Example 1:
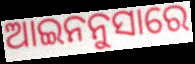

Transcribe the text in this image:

ଆଇନନୁସାରେ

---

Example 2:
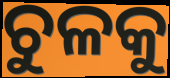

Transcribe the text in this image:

ଚୁଳକୁ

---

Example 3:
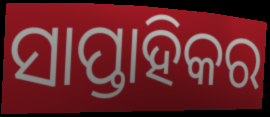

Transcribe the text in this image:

ସାପ୍ତାହିକର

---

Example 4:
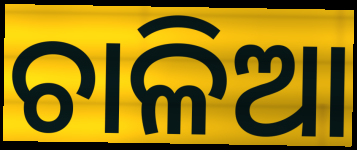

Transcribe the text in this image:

ଚାଳିଆ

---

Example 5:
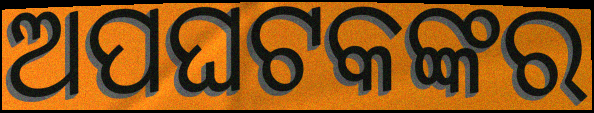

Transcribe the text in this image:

ଅପଘଟକଙ୍କର